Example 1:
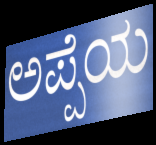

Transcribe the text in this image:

ಅಪ್ಪೆಯ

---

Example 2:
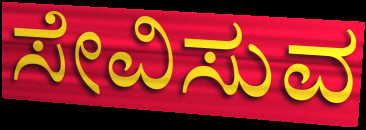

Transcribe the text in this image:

ಸೇವಿಸುವ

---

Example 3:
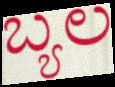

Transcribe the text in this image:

ಬ್ಯಲ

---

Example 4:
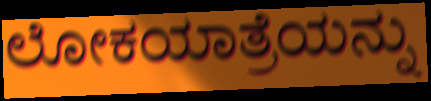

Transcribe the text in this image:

ಲೋಕಯಾತ್ರೆಯನ್ನು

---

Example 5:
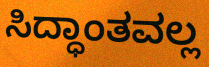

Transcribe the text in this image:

ಸಿದ್ಧಾಂತವಲ್ಲ